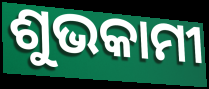
ଶୁଭକାମୀ